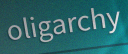
oligarchy